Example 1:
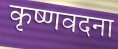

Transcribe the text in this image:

कृष्णवदना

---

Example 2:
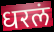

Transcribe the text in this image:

धरलं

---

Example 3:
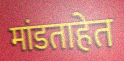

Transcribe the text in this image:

मांडताहेत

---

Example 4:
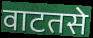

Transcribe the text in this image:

वाटतसे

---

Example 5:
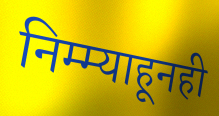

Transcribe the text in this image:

निम्म्याहूनही